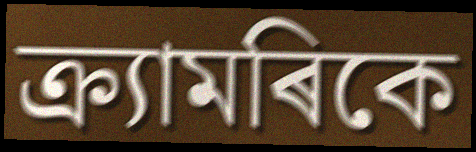
ক্ৰ্যামৰিকে